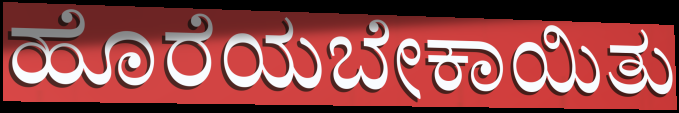
ಹೊರೆಯಬೇಕಾಯಿತು